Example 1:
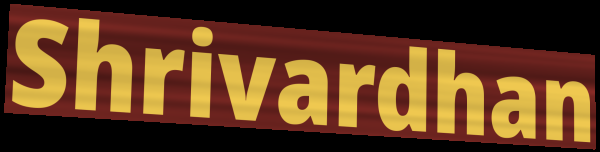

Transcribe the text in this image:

Shrivardhan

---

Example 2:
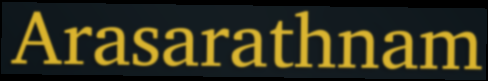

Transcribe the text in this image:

Arasarathnam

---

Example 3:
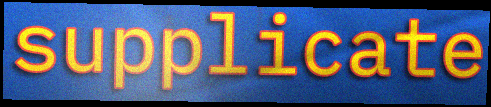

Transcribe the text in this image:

supplicate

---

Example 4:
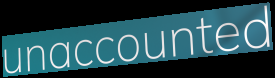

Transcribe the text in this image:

unaccounted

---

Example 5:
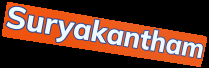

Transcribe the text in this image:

Suryakantham